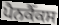
ਪੈਨਕੈੱਕਸ